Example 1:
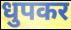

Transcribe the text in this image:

धुपकर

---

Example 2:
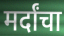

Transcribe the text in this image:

मर्दांचा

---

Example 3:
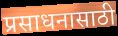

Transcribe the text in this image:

प्रसाधनासाठी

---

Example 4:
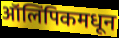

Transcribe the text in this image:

ऑलिंपिकमधून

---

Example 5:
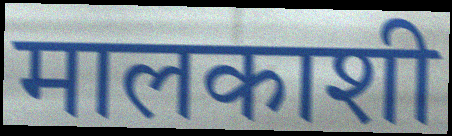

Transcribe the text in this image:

मालकाशी